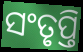
ସଂତୃପ୍ତି